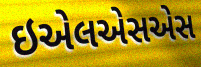
ઇએલએસએસ